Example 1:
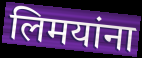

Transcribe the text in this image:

लिमयांना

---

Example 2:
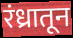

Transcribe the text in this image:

रंध्रातून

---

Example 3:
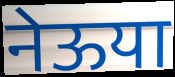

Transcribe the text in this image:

नेऊया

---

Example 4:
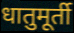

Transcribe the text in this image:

धातुमूर्ती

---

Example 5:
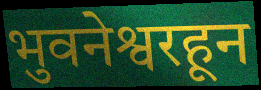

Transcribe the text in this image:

भुवनेश्वरहून